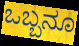
ಒಬ್ಬನೂ